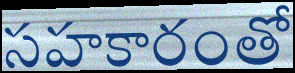
సహకారంతో